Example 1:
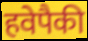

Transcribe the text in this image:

हवेपैकी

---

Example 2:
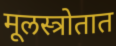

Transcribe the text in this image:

मूलस्त्रोतात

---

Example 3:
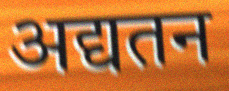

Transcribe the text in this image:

अद्यतन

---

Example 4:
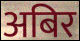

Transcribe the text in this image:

अबिर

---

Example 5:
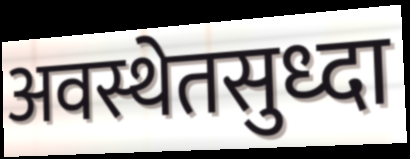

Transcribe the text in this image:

अवस्थेतसुध्दा